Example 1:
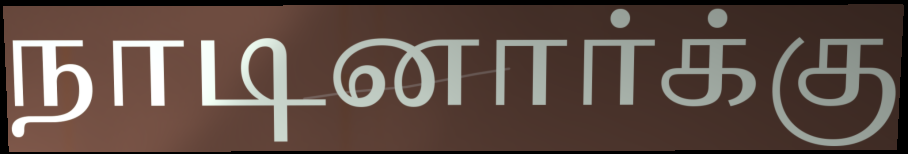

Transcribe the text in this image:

நாடினார்க்கு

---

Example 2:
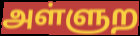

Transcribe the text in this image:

அள்ளுற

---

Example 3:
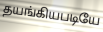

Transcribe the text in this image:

தயங்கியபடியே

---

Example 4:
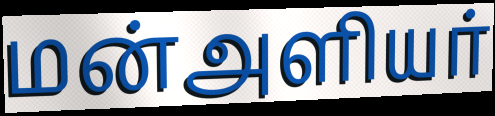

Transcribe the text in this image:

மன்அளியர்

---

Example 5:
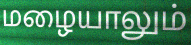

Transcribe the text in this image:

மழையாலும்